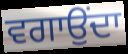
ਵਗਾਉਂਦਾ